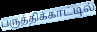
பருத்திக்காட்டில்